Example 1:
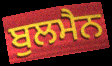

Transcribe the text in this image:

ਬੁਲਮੈਨ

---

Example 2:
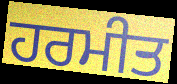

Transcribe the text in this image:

ਹਰਮੀਤ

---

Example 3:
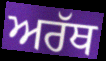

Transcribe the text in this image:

ਅਰੱਥ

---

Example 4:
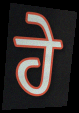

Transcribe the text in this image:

ਹੇ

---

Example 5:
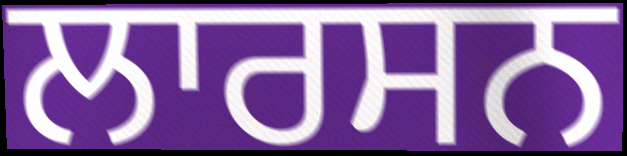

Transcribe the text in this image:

ਲਾਰਸਨ